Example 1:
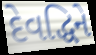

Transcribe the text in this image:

દેવદ્ધિને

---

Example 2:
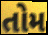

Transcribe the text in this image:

તોમ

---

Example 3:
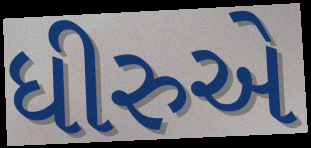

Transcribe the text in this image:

ધીરુએ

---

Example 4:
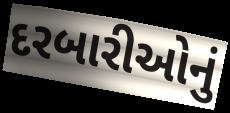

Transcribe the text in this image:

દરબારીઓનું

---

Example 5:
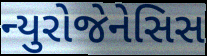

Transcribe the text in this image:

ન્યુરોજેનેસિસ